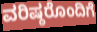
ವರಿಷ್ಠರೊಂದಿಗೆ